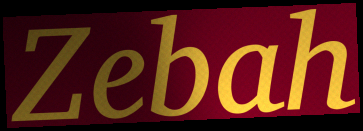
Zebah